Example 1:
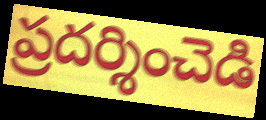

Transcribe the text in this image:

ప్రదర్శించెడి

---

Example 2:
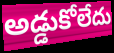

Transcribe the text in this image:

అడ్డుకోలేదు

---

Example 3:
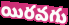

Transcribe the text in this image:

యిరవగు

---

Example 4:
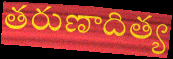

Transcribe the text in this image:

తరుణాదిత్య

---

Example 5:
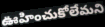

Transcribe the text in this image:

ఊహించుకోలేమని